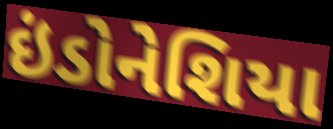
ઇંડોનેશિયા